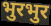
भुरभुर